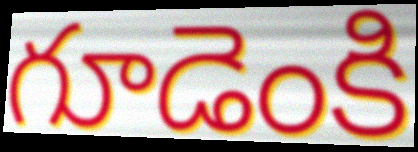
గూడెంకి